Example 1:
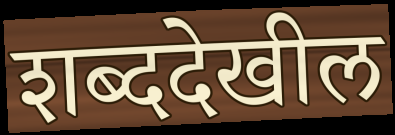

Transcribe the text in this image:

शब्ददेखील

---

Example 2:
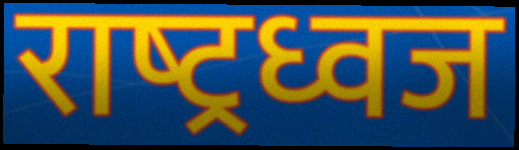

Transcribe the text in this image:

राष्ट्रध्वज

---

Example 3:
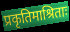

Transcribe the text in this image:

प्रकृतिमाश्रिताः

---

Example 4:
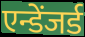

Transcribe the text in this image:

एन्डेंजर्ड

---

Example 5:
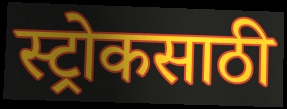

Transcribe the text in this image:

स्ट्रोकसाठी